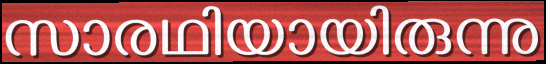
സാരഥിയായിരുന്നു